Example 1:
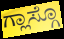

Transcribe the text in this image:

ಗ್ಲಾಸ್ಗೊ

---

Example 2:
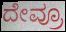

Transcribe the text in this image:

ದೇವ್ರೂ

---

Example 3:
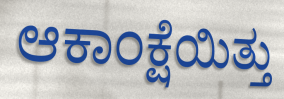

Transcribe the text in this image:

ಆಕಾಂಕ್ಷೆಯಿತ್ತು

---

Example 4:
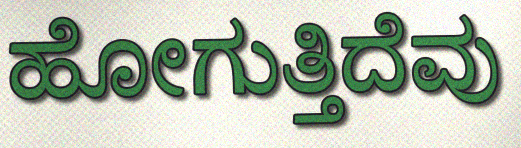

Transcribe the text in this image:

ಹೋಗುತ್ತಿದೆವು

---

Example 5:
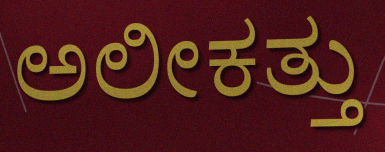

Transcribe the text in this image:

ಅಲೀಕತ್ತು